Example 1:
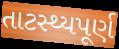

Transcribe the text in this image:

તાટસ્થ્યપૂર્ણ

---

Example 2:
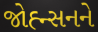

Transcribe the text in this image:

જોહ્ન્સનને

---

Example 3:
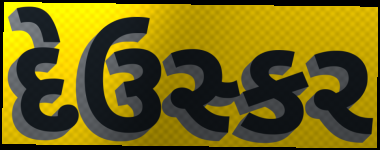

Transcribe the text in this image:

દેઉસ્કર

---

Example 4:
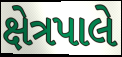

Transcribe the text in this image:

ક્ષેત્રપાલે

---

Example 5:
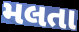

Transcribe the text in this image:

મલતા